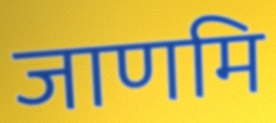
जाणमि